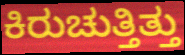
ಕಿರುಚುತ್ತಿತ್ತು